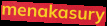
menakasury